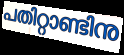
പതിറ്റാണ്ടിനു